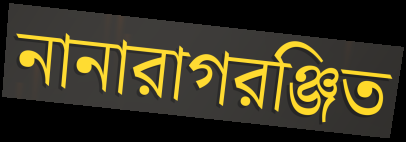
নানারাগরঞ্জিত